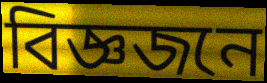
বিজ্ঞজনে